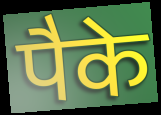
पैके